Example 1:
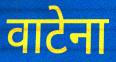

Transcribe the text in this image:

वाटेना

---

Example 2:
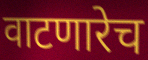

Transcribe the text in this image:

वाटणारेच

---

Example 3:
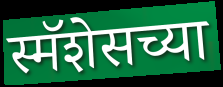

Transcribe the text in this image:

स्मॅशेसच्या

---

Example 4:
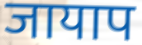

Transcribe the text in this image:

जायाप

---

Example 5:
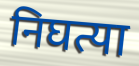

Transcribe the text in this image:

निघत्या